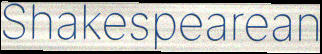
Shakespearean